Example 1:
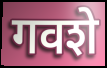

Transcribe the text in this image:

गवशे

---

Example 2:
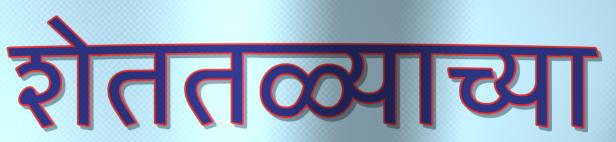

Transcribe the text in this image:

शेततळ्याच्या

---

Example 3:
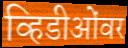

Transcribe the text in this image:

व्हिडीओंवर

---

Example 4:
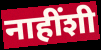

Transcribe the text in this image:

नाहींशी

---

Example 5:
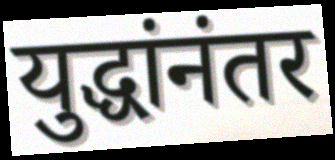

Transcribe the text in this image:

युद्धांनंतर